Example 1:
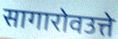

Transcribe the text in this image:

सागारोवउत्ते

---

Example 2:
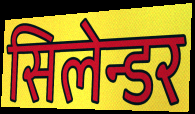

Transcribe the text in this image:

सिलेन्डर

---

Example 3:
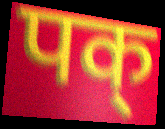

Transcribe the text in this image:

पक्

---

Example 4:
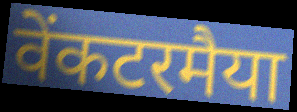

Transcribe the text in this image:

वेंकटरमैया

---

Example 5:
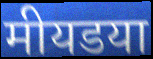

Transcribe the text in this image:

मीयडया